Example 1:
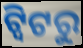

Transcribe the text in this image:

ଟ୍ବିଟରୁ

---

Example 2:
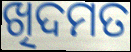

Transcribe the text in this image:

ଖିଦମତ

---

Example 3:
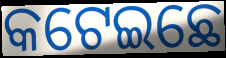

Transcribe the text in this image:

କଟେଇଛେ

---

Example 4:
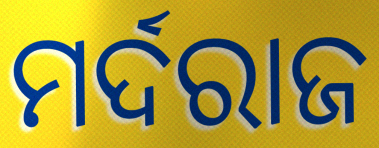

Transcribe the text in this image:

ମର୍ଦରାଜ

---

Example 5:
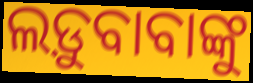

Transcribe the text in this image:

ଲଡ଼ୁବାବାଙ୍କୁ